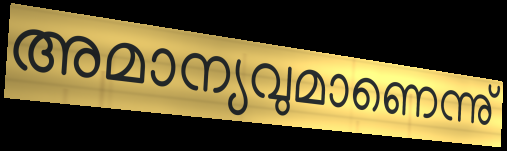
അമാന്യവുമാണെന്നു്